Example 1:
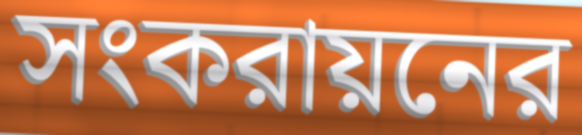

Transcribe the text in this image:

সংকরায়নের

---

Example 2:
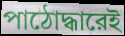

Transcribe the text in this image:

পাঠোদ্ধারেই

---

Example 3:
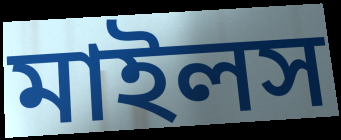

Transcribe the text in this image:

মাইলস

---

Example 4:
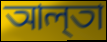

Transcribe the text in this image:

আল্‌তা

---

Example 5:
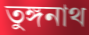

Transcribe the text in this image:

তুঙ্গনাথ